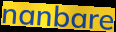
nanbare